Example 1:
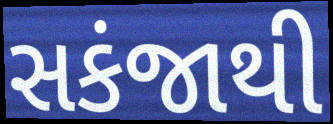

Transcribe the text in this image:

સકંજાથી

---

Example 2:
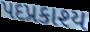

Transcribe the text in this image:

પદપ્રકાશ્ય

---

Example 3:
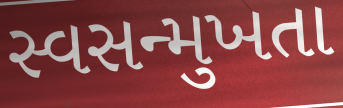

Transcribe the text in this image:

સ્વસન્મુખતા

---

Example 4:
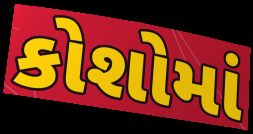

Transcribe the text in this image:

કોશોમાં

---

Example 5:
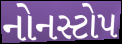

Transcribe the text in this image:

નોનસ્ટોપ